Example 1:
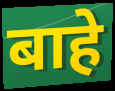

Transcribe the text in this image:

बाहे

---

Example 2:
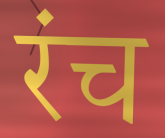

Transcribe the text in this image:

रंच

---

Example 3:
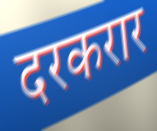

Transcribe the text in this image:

दरकरार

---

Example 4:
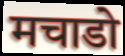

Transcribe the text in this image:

मचाडो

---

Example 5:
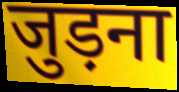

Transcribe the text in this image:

जुड़ना